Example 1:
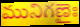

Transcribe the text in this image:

మునిగణైః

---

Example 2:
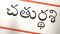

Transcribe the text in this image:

చతుర్థశి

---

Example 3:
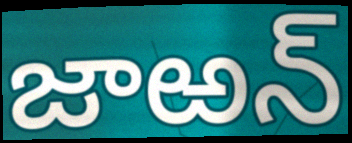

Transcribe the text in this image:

జాఱన్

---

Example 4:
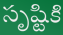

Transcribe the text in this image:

సృష్టికి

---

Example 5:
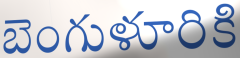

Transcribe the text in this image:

బెంగుళూరికి